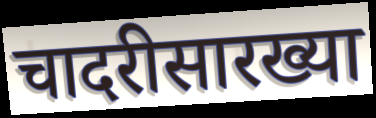
चादरीसारख्या